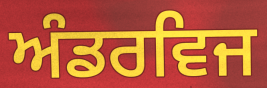
ਅੰਡਰਵਿਜ